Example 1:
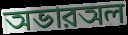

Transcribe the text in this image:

অভারঅল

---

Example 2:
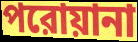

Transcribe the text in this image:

পরোয়ানা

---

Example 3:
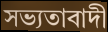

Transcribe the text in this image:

সভ্যতাবাদী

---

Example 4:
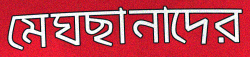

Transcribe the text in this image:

মেঘছানাদের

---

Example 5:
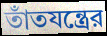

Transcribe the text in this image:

তাঁতযন্ত্রের